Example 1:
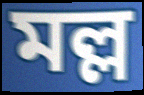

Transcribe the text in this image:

মল্ল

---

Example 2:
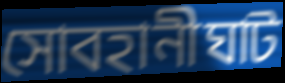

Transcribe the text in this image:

সোবহানীঘাট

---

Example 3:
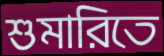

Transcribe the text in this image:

শুমারিতে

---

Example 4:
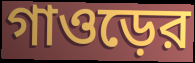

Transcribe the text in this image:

গাওড়ের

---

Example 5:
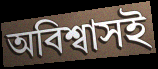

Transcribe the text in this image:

অবিশ্বাসই